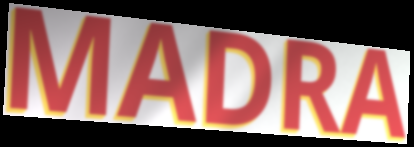
MADRA